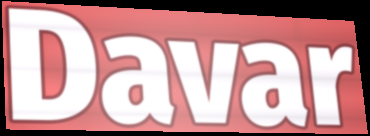
Davar